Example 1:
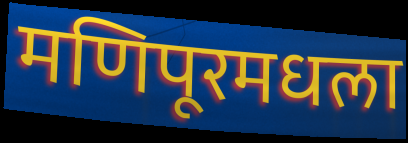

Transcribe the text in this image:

मणिपूरमधला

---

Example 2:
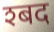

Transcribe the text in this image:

श्बद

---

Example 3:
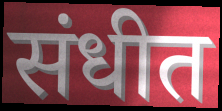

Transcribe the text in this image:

संधीत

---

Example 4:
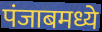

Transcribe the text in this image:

पंजाबमध्ये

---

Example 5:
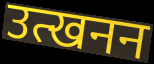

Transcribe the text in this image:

उत्खनन